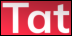
Tat